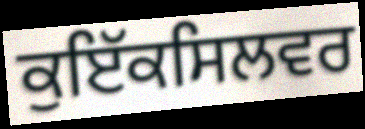
ਕੁਇੱਕਸਿਲਵਰ